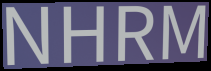
NHRM